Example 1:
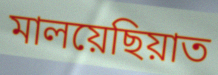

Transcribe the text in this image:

মালয়েছিয়াত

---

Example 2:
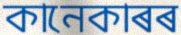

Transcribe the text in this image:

কানেকাৰৰ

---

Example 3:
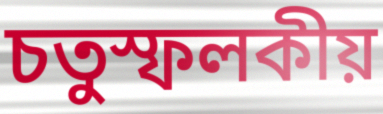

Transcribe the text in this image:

চতুস্ফলকীয়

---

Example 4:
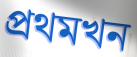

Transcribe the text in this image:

প্ৰথমখন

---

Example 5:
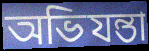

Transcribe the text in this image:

অভিযন্তা